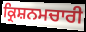
ਕ੍ਰਿਸ਼ਨਮਚਾਰੀ